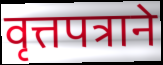
वृत्तपत्राने